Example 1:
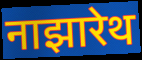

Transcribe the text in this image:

नाझारेथ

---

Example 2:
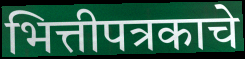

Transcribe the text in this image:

भित्तीपत्रकाचे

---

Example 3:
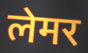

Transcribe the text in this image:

लेमर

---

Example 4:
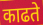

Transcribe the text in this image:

काढते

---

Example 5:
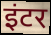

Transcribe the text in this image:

इंटर